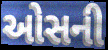
ઓસની